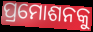
ପ୍ରମୋଶନକୁ